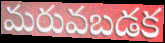
మరువబడక